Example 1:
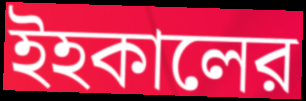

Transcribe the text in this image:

ইহকালের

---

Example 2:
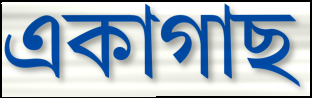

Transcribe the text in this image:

একাগাছ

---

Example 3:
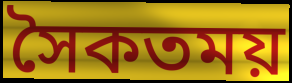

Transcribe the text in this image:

সৈকতময়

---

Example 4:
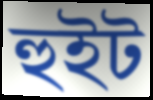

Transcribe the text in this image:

হুইট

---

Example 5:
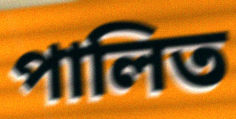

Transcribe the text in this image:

পালিত